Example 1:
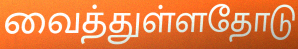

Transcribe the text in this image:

வைத்துள்ளதோடு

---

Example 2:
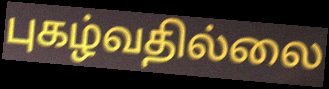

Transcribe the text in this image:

புகழ்வதில்லை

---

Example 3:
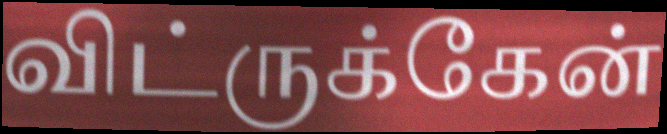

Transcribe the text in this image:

விட்ருக்கேன்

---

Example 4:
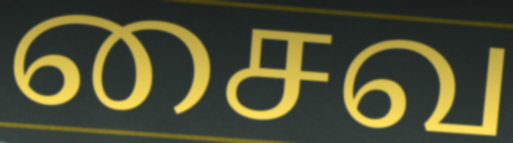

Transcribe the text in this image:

சைவ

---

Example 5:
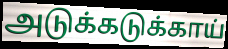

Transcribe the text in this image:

அடுக்கடுக்காய்